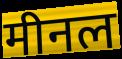
मीनल